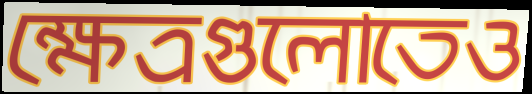
ক্ষেত্রগুলোতেও